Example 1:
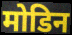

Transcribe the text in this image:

मोडिन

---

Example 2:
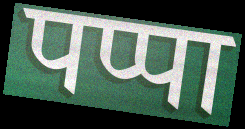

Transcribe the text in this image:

पप्‍पा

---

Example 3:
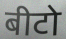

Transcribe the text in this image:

बीटो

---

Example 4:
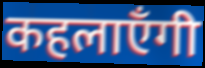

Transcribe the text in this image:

कहलाएँगी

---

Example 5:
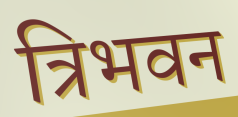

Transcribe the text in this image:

त्रिभवन